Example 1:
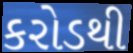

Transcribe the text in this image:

કરોડથી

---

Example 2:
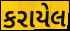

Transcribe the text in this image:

કરાયેલ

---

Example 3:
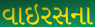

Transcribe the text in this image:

વાઇરસના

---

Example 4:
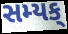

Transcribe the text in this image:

સમ્યક્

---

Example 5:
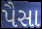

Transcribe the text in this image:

પૈસા